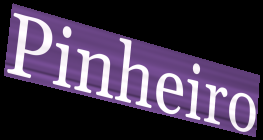
Pinheiro